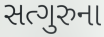
સત્ગુરુના